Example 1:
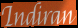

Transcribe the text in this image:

Indiran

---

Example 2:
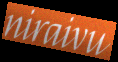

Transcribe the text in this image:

niraivu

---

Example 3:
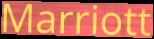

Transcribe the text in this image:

Marriott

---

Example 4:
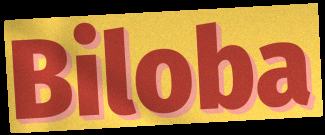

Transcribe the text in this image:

Biloba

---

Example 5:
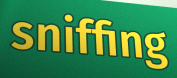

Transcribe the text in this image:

sniffing